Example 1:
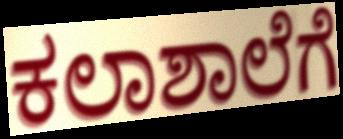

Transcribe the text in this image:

ಕಲಾಶಾಲೆಗೆ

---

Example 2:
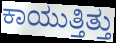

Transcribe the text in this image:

ಕಾಯುತ್ತಿತ್ತು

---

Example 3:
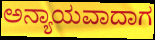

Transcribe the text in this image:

ಅನ್ಯಾಯವಾದಾಗ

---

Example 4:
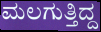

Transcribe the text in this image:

ಮಲಗುತ್ತಿದ್ದ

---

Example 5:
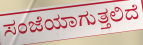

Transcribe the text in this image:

ಸಂಜೆಯಾಗುತ್ತಲಿದೆ